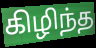
கிழிந்த